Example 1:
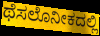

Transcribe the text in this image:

ಥೆಸಲೊನೀಕದಲ್ಲಿ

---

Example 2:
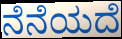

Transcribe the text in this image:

ನೆನೆಯದೆ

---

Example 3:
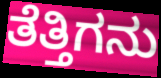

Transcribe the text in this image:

ತೆತ್ತಿಗನು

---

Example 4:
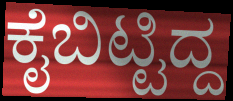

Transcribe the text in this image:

ಕೈಬಿಟ್ಟಿದ್ದ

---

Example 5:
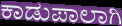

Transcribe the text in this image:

ಕಾಡುಪಾಲಾಗಿ